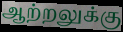
ஆற்றலுக்கு